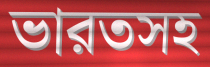
ভারতসহ